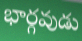
భార్గవుడు